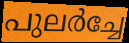
പുലർച്ചേ